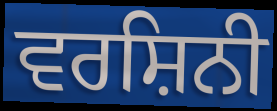
ਵਰਸ਼ਿਨੀ